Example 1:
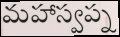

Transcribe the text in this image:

మహాస్వప్న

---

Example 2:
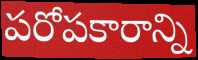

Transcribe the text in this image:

పరోపకారాన్ని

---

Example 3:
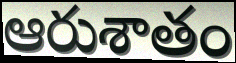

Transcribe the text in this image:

ఆరుశాతం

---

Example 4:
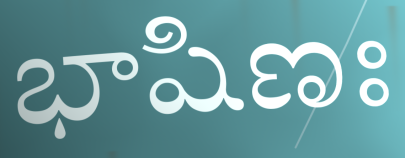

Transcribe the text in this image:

భాషిణః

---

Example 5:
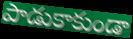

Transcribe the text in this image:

పాడుకాకుండా